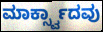
ಮಾರ್ಕ್ಸ್ವಾದವು